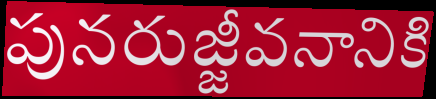
పునరుజ్జీవనానికి